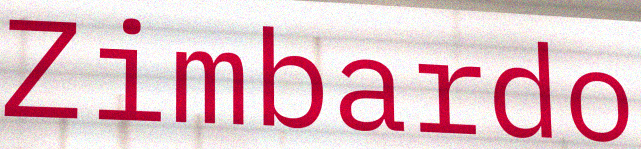
Zimbardo